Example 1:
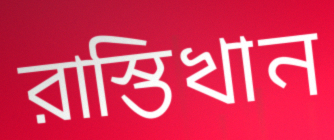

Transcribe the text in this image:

রাস্তিখান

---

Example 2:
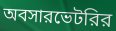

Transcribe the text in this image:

অবসারভেটরির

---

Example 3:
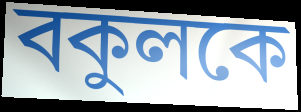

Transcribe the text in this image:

বকুলকে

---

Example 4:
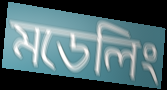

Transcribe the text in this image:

মডেলিং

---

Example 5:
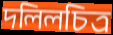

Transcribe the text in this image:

দলিলচিত্র